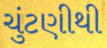
ચુંટણીથી